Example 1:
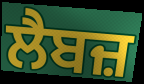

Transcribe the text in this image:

ਲੈਬਜ਼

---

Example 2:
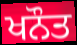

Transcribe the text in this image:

ਖਨੌਤ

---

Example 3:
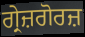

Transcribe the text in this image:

ਗ੍ਰੇਜ਼ਗੋਰਜ਼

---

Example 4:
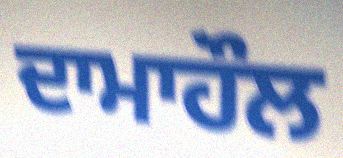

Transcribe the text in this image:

ਦਾਮਾਹੌਲ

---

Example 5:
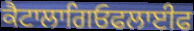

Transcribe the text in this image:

ਕੈਟਾਲਾਗਿਓਫਲਾਈਫ